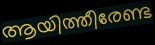
ആയിത്തീരേണ്ട